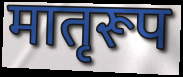
मातृरूप